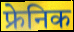
फ्रेनिक